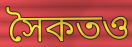
সৈকতও